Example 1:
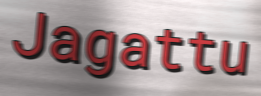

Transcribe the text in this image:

Jagattu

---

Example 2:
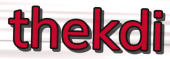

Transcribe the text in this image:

thekdi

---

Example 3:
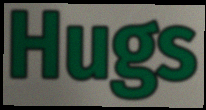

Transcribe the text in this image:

Hugs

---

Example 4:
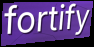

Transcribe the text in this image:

fortify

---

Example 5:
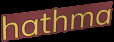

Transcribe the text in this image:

hathma